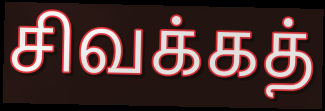
சிவக்கத்